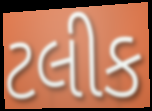
ટલીક